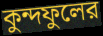
কুন্দফুলের